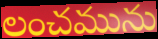
లంచమును